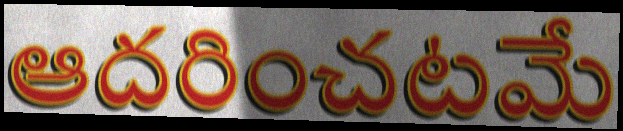
ఆదరించటమే